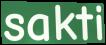
sakti